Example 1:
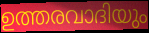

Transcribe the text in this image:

ഉത്തരവാദിയും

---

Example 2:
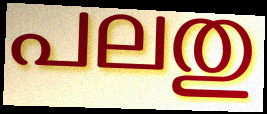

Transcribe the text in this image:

പലതു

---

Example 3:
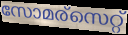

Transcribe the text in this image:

സോമര്സെറ്റ്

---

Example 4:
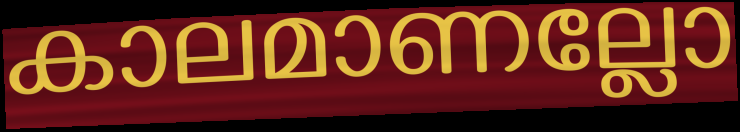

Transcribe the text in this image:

കാലമാണല്ലോ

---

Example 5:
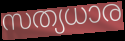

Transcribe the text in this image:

സത്യധാര